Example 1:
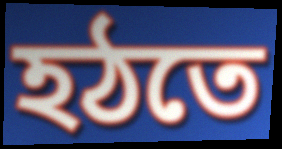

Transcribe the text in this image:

হঠতে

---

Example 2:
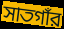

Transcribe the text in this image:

সাতগাঁর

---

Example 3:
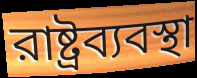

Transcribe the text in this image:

রাষ্ট্রব্যবস্থা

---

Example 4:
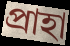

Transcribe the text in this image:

প্রাহা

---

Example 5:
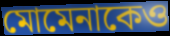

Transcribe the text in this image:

মোমেনাকেও